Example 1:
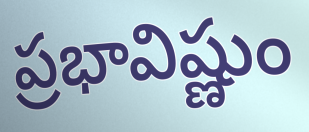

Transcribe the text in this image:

ప్రభావిష్ణుం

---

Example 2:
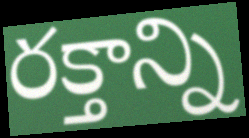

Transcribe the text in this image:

రక్తాన్ని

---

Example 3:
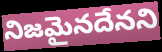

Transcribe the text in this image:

నిజమైనదేనని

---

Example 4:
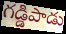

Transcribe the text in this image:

గడ్డిపాడు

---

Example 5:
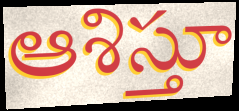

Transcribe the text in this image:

ఆశిస్తూ